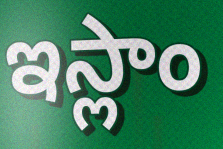
ఇస్లాం